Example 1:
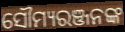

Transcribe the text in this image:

ସୌମ୍ୟରଞ୍ଜନଙ୍କ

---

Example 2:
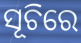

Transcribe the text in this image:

ସୂଚିରେ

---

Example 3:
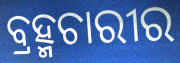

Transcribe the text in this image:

ବ୍ରହ୍ମଚାରୀର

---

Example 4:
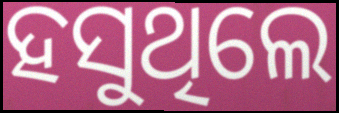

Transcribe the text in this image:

ହସୁଥିଲେ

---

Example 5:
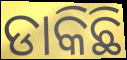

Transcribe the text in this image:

ଡାକିଛି